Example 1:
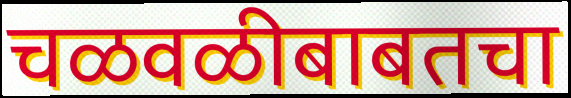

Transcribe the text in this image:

चळवळीबाबतचा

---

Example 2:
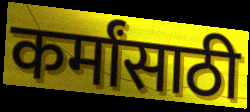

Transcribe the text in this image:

कर्मांसाठी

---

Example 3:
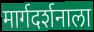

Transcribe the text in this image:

मार्गदर्शनाला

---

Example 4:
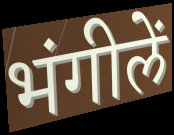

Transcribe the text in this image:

भंगीलें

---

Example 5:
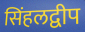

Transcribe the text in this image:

सिंहलद्वीप